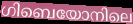
ഗിബെയോനിലെ